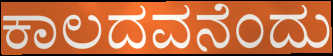
ಕಾಲದವನೆಂದು